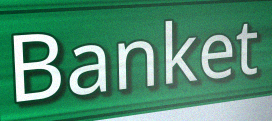
Banket